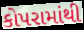
કોપરામાંથી